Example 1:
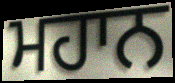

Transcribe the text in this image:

ਮਹਾਨ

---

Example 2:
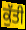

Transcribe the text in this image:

ਕੁੱਤੀ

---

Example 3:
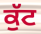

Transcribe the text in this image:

ਕੁੱਟ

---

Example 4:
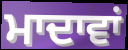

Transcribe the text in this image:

ਮਾਦਾਵਾਂ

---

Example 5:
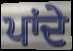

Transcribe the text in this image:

ਪਾਂਦੇ